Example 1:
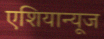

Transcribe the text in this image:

एशियान्यूज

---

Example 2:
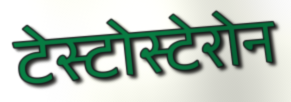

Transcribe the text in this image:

टेस्‍टोस्‍टेरोन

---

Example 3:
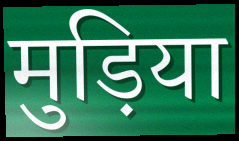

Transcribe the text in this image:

मुड़िया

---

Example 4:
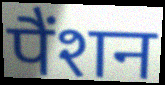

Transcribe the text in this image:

पैंशन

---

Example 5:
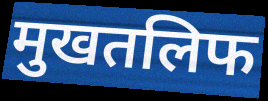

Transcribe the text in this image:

मुखतलिफ